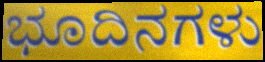
ಭೂದಿನಗಳು